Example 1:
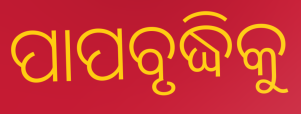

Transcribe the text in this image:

ପାପବୃଦ୍ଧିକୁ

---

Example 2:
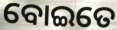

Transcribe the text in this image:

ବୋଇତେ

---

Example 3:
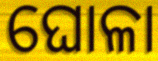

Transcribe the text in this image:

ଘୋଳା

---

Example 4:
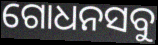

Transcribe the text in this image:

ଗୋଧନସବୁ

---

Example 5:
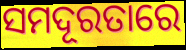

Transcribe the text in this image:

ସମଦୂରତାରେ